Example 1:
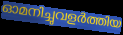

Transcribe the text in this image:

ഓമനിച്ചുവളർത്തിയ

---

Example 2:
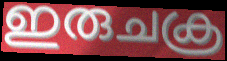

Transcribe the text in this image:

ഇരുചക്ര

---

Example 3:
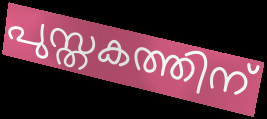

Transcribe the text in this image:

പുസ്തകത്തിന്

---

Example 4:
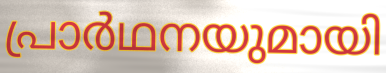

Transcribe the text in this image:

പ്രാർഥനയുമായി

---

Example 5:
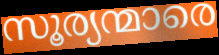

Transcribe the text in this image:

സൂര്യന്മാരെ